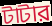
টাটার